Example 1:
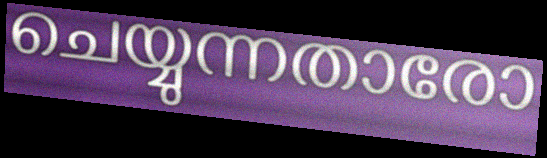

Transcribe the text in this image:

ചെയ്യുന്നതാരോ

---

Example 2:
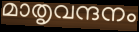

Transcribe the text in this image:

മാതൃവന്ദനം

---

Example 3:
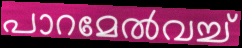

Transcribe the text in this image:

പാറമേൽവച്ച്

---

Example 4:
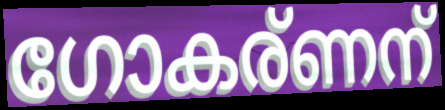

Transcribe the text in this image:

ഗോകര്ണന്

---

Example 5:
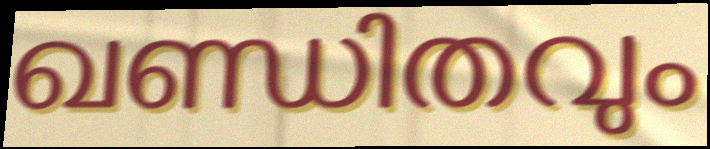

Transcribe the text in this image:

ഖണ്ഡിതവും